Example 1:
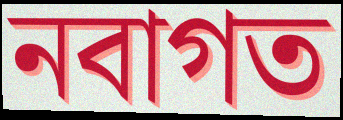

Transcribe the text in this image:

নবাগত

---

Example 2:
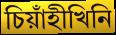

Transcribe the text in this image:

চিয়াঁহীখিনি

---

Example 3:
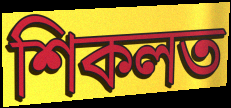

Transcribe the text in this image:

শিকলত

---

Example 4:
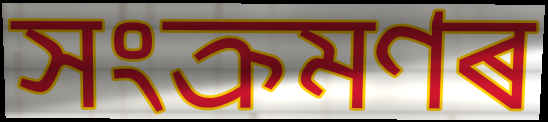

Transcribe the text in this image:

সংক্ৰমণৰ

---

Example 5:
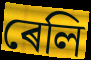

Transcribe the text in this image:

ৰেলি